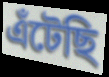
এঁটেছি